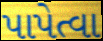
પાપેત્વા